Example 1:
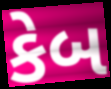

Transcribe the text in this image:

કેબ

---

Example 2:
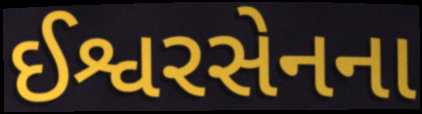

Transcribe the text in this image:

ઈશ્વરસેનના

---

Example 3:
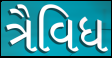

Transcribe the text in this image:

ત્રૈવિધ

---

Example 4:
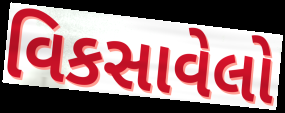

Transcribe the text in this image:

વિકસાવેલો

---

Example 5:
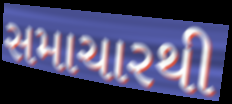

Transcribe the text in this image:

સમાચારથી